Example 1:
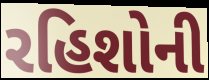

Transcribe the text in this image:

રહિશોની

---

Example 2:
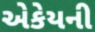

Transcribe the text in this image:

એકેયની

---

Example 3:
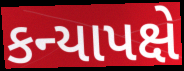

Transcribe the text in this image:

કન્યાપક્ષે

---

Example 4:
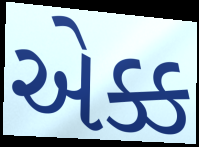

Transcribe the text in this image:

એક્ક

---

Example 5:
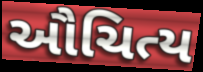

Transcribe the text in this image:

ઔચિત્ય